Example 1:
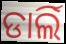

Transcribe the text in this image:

ଡାର୍ଲି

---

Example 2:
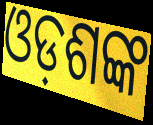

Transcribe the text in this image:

ଓଡ଼ଶଙ୍କ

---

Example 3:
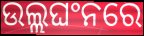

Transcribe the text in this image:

ଉଲ୍ଲଘଂନରେ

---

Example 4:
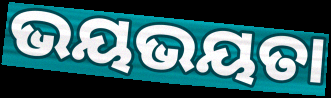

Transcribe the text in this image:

ଭୟଭୟତା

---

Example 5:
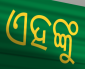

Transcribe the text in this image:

ଏହଙ୍କୁ